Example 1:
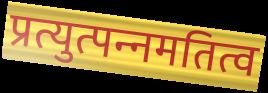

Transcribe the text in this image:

प्रत्युत्पन्नमतित्व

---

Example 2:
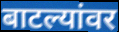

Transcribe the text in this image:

बाटल्यांवर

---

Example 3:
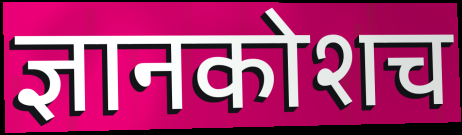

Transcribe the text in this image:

ज्ञानकोशच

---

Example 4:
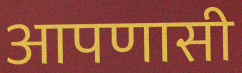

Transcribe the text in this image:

आपणासी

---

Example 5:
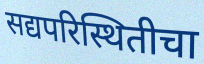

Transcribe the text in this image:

सद्यपरिस्थितीचा